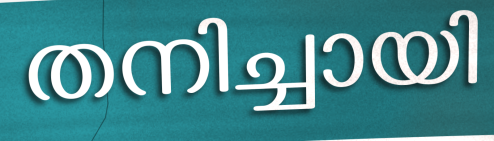
തനിച്ചായി